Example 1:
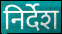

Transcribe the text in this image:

निर्देश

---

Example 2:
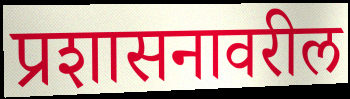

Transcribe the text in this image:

प्रशासनावरील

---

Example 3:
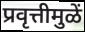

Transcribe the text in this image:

प्रवृत्तीमुळें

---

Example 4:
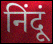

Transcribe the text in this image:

निंदूं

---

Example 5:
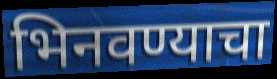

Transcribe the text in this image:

भिनवण्याचा